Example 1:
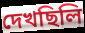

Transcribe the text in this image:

দেখছিলি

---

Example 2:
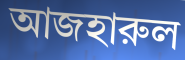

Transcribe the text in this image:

আজহারুল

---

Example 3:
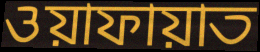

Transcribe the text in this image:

ওয়াফায়াত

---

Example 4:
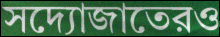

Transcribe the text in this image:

সদ্যোজাতেরও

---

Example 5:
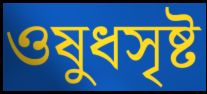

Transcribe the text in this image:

ওষুধসৃষ্ট